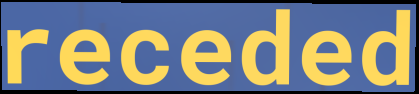
receded